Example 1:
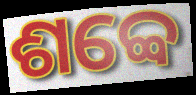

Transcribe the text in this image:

ଶବ୍ବେ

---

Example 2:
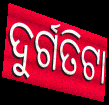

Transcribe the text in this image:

ଦୁର୍ଗତିଟା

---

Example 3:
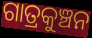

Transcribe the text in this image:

ଗାତ୍ରକୁଞ୍ଚନ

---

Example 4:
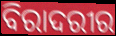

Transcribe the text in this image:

ବିରାଦରୀର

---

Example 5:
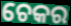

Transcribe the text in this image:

ଚେକର